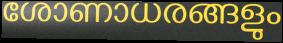
ശോണാധരങ്ങളും